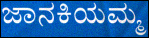
ಜಾನಕಿಯಮ್ಮ